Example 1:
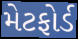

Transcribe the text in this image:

મેટફોર્ડ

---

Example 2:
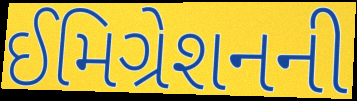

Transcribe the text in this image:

ઈમિગ્રેશનની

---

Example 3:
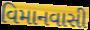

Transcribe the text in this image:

વિમાનવાસી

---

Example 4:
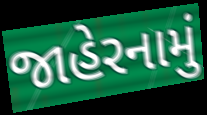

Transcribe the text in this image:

જાહેરનામું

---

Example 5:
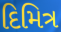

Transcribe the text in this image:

દિમિત્ર